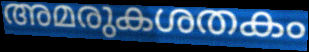
അമരുകശതകം